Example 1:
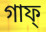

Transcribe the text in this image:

গাফ্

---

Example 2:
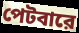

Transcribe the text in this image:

পেটবারে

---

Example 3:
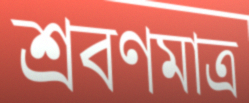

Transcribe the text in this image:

শ্রবণমাত্র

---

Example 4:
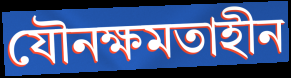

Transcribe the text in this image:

যৌনক্ষমতাহীন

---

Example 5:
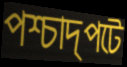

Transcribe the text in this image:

পশ্চাদ্‌পটে